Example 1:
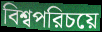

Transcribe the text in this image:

বিশ্বপরিচয়ে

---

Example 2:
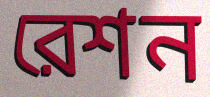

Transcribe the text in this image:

রেশন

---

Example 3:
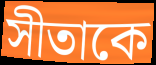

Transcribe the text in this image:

সীতাকে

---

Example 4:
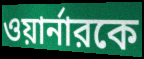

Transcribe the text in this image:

ওয়ার্নারকে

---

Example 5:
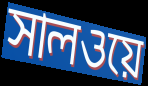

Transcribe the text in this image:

সালওয়ে